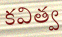
కవిత్వ